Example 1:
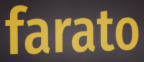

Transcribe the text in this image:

farato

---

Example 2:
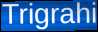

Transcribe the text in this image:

Trigrahi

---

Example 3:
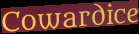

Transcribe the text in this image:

Cowardice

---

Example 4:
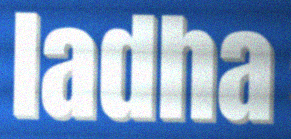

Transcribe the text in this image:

ladha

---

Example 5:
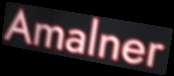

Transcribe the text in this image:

Amalner